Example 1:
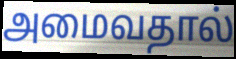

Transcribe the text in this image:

அமைவதால்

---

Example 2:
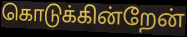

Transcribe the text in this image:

கொடுக்கின்றேன்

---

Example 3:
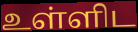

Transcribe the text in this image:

உள்ளிட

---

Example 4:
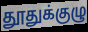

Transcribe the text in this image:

தூதுக்குழு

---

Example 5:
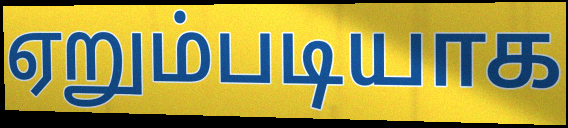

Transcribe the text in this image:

ஏறும்படியாக